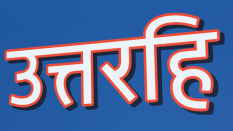
उत्तरहि